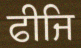
ਫੀਜਿ